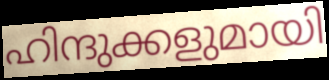
ഹിന്ദുക്കളുമായി